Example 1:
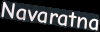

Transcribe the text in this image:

Navaratna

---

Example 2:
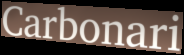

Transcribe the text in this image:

Carbonari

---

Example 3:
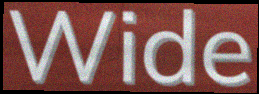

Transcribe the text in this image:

Wide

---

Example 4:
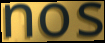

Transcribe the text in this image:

nos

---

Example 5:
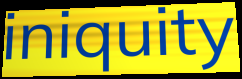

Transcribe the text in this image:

iniquity